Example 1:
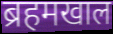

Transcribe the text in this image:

ब्रहमखाल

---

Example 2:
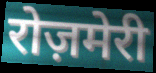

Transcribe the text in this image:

रोज़मेरी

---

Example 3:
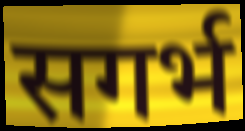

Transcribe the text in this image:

सगर्भ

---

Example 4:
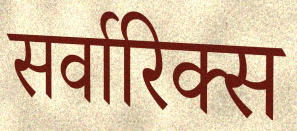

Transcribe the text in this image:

सर्वारिक्स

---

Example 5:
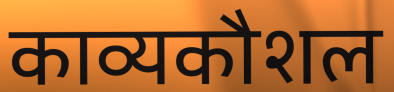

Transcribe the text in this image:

काव्यकौशल